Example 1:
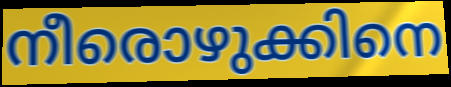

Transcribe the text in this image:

നീരൊഴുക്കിനെ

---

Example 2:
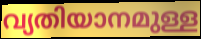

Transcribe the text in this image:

വ്യതിയാനമുള്ള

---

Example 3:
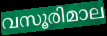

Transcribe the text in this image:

വസൂരിമാല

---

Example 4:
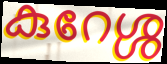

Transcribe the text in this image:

കുറേശ്ശ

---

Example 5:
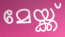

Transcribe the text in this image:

മേയ്ക്ക്